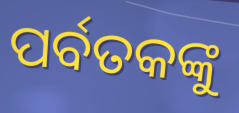
ପର୍ବତକଙ୍କୁ